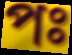
পঃ